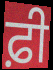
ਫ਼ੀ